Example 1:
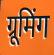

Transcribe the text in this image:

ग्रूमिंग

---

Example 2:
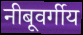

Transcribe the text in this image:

नीबूवर्गीय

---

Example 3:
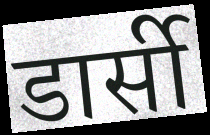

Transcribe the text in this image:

डार्सी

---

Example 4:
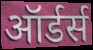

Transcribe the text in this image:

ऑर्डर्स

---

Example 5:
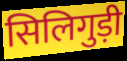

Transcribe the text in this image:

सिलिगुड़ी